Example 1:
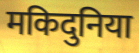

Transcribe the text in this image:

मकिदुनिया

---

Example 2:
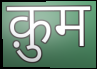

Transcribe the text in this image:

क़ुम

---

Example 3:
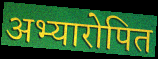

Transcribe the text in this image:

अभ्यारोपित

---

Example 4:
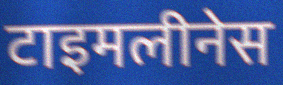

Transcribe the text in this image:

टाइमलीनेस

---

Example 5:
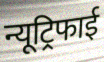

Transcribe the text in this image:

न्यूट्रिफाई